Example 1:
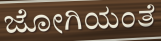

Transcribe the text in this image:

ಜೋಗಿಯಂತೆ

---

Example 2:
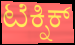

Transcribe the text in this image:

ಟೆಕ್ನಿಕ್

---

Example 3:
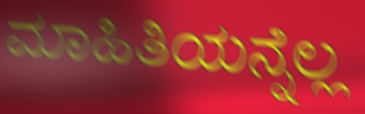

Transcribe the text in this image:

ಮಾಹಿತಿಯನ್ನೆಲ್ಲ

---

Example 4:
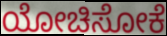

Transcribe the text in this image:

ಯೋಚಿಸೋಕೆ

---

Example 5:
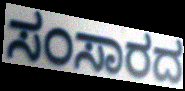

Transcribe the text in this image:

ಸಂಸಾರದ